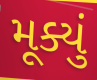
મૂક્યું